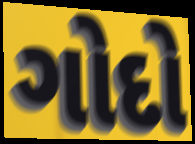
ગોદો